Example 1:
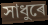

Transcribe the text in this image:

সাধুৰে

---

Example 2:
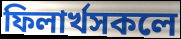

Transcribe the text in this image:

ফিলাৰ্খসকলে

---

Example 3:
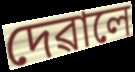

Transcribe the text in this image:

দেৱালে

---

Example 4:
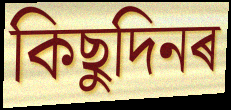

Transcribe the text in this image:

কিছুদিনৰ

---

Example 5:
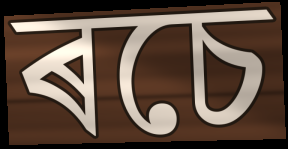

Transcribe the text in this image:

ৰচে